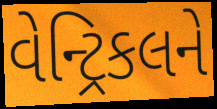
વેન્ટ્રિકલને